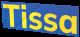
Tissa